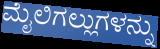
ಮೈಲಿಗಲ್ಲುಗಳನ್ನು